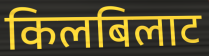
किलबिलाट